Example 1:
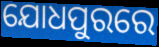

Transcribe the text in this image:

ଯୋଧପୁରରେ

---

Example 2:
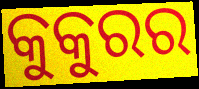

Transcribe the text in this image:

କୁକୁରର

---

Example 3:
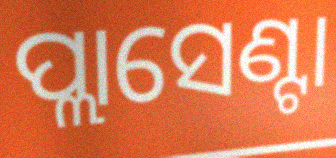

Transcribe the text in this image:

ପ୍ଲାସେଣ୍ଟା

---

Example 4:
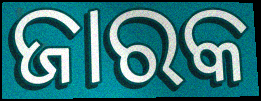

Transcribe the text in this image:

ଜାରକ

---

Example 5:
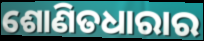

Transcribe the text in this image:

ଶୋଣିତଧାରାର